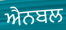
ਐਨਬਲ